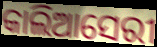
କାଲିଆସେରୀ